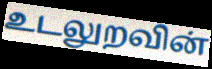
உடலுறவின்